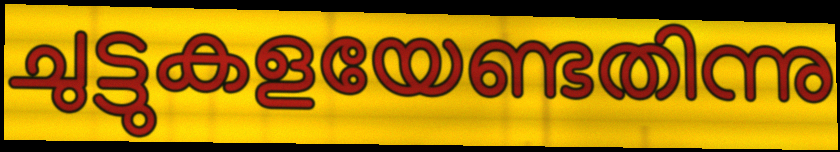
ചുട്ടുകളയേണ്ടതിന്നു